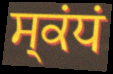
ਸ੍ਕਂਧਂ